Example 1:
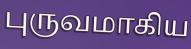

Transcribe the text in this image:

புருவமாகிய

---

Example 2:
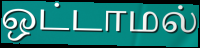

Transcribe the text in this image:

ஒட்டாமல்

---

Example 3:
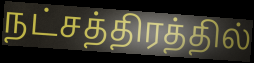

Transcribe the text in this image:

நட்சத்திரத்தில்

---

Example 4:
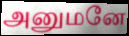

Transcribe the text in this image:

அனுமனே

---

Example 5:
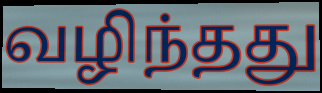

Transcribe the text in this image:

வழிந்தது